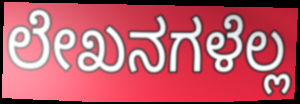
ಲೇಖನಗಳೆಲ್ಲ